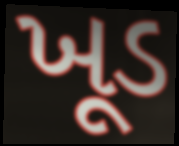
ખૂડ